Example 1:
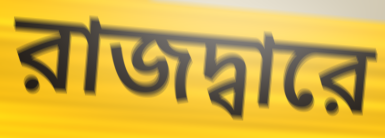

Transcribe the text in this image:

রাজদ্বারে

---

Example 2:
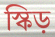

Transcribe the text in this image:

স্কিড়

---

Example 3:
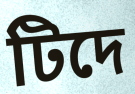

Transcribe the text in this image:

টিদে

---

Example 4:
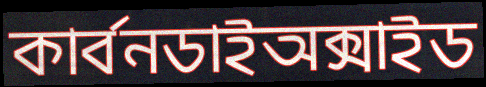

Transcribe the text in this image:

কার্বনডাইঅক্সাইড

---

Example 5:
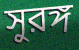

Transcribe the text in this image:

সুরঙ্গ